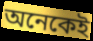
অনেকেই